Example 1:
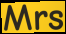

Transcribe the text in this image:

Mrs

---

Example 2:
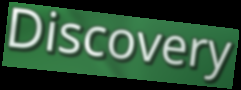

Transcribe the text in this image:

Discovery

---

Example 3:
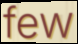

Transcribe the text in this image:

few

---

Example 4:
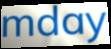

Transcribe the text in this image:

mday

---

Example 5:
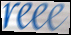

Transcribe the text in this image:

reee